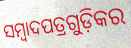
ସମ୍ୱାଦପତ୍ରଗୁଡ଼ିକର